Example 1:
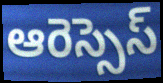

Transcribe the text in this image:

ఆరెస్సెస్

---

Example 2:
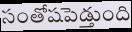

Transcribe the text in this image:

సంతోషపెడ్తుంది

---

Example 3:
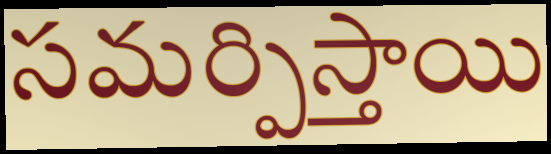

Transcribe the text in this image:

సమర్పిస్తాయి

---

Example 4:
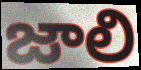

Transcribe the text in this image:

జాలి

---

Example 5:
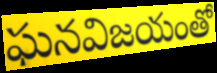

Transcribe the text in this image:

ఘనవిజయంతో